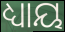
ଧ୍ୟାୟ